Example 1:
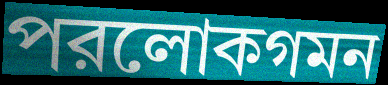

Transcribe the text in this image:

পরলোকগমন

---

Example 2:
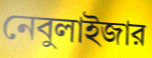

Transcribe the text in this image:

নেবুলাইজার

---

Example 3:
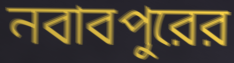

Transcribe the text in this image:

নবাবপুরের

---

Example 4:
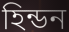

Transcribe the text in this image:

হিন্ডন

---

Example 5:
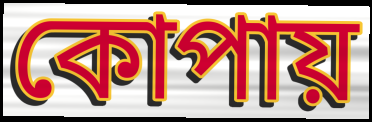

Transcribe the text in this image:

কোপায়